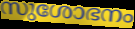
സുശോഭനം